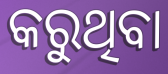
କରୁଥିବା